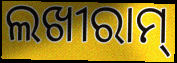
ଲଖୀରାମ୍